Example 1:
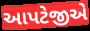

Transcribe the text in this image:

આપટેજીએ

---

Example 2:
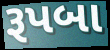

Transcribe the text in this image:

રૂપબા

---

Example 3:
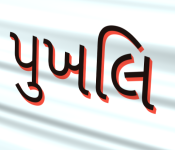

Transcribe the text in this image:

પુખલિ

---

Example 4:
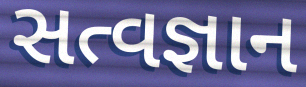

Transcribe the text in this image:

સત્વજ્ઞાન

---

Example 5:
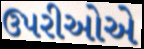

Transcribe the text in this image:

ઉપરીઓએ